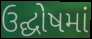
ઉદ્ઘોષમાં